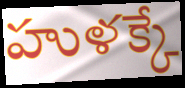
హుళక్కే